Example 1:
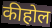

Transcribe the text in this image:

कीहोल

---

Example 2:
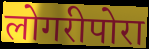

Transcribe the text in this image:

लोगरीपोरा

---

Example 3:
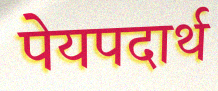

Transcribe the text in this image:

पेयपदार्थ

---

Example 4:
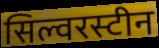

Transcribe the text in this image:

सिल्वरस्टीन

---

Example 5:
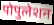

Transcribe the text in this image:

पोपुलेशन